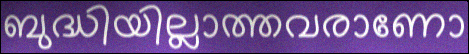
ബുദ്ധിയില്ലാത്തവരാണോ